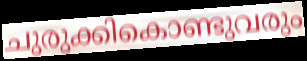
ചുരുക്കികൊണ്ടുവരും